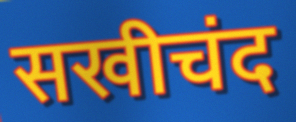
सखीचंद